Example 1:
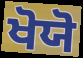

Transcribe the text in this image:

ਖੋਯੋ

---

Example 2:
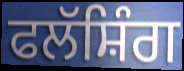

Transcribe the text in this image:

ਫਲੱਸ਼ਿੰਗ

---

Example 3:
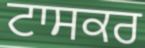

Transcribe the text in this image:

ਟਾਸਕਰ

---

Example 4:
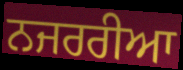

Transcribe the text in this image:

ਨਜਰਰੀਆ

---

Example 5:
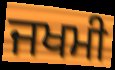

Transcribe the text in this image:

ਜਖਮੀ